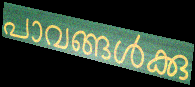
പാവങ്ങൾക്കു